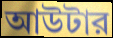
আউটার